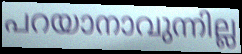
പറയാനാവുന്നില്ല